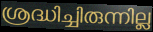
ശ്രദ്ധിച്ചിരുന്നില്ല